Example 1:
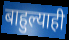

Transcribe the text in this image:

बाहुल्याही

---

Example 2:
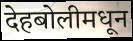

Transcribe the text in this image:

देहबोलीमधून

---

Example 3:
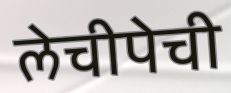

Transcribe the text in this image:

लेचीपेची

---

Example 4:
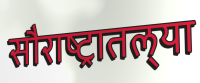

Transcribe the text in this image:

सौराष्ट्रातल्या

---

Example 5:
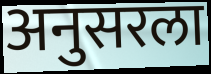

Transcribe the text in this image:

अनुसरला